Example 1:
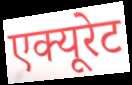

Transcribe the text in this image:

एक्यूरेट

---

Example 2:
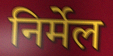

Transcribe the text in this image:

निर्मेल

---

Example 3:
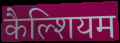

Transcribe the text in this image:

कैल्शियम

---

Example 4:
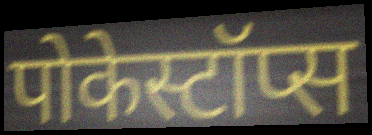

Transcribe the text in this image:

पोकेस्टॉप्स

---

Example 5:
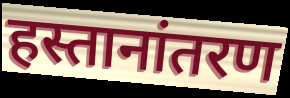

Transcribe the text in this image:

हस्तानांतरण